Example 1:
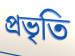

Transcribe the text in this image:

প্রভৃতি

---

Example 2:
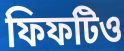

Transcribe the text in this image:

ফিফটিও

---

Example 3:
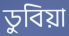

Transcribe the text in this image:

ডুবিয়া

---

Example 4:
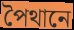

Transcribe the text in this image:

পৈথানে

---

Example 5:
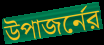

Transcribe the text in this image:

উপাজর্নের